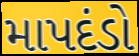
માપદંડો